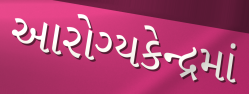
આરોગ્યકેન્દ્રમાં